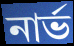
নার্ভ